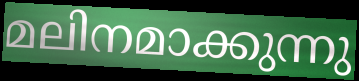
മലിനമാക്കുന്നു